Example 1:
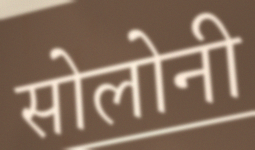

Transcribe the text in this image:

सोलोनी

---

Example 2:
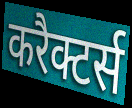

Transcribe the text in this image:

करैक्टर्स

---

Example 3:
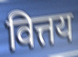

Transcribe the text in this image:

वित्तय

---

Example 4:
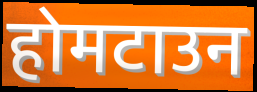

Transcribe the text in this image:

होमटाउन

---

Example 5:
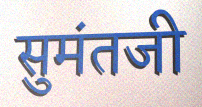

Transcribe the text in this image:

सुमंतजी